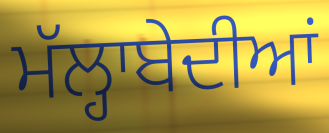
ਮੱਲ੍ਹਾਬੇਦੀਆਂ